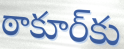
ఠాకూర్‌కు